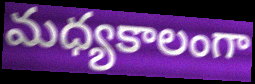
మధ్యకాలంగా